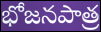
భోజనపాత్ర